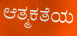
ಆತ್ಮಕತೆಯ